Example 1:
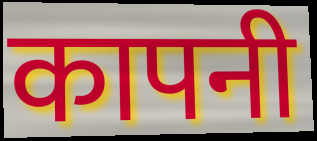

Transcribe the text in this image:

कापनी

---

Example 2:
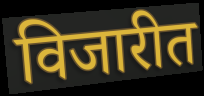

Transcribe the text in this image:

विजारीत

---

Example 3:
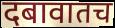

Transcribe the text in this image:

दबावातच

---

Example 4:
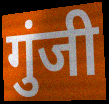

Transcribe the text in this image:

गुंजी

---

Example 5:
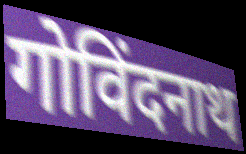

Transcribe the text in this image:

गोविंदनाथ